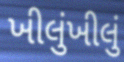
ખીલુંખીલું